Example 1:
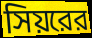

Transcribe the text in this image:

সিয়রের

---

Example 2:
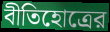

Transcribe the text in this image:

বীতিহোত্রের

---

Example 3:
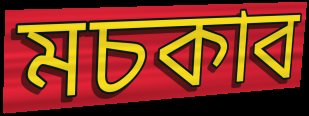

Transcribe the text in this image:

মচকাব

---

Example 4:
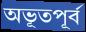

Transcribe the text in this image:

অভূতপূর্ব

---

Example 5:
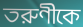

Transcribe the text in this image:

তরুণীকে